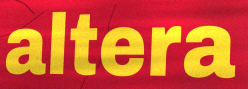
altera